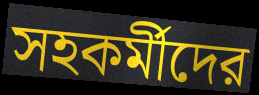
সহকর্মীদের